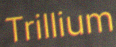
Trillium